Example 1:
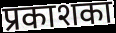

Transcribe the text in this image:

प्रकाशका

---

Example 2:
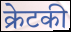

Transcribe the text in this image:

क्रेटकी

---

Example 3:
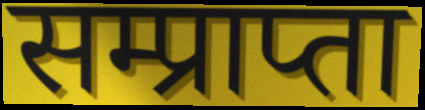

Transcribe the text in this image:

सम्प्राप्ता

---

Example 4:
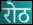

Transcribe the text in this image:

रोठ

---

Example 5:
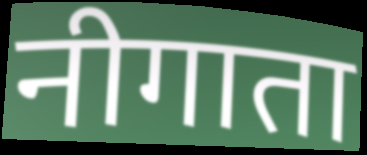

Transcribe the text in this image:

नीगाता